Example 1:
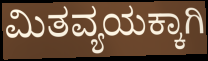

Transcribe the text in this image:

ಮಿತವ್ಯಯಕ್ಕಾಗಿ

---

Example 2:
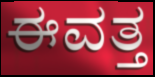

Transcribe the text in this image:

ಈವತ್ತ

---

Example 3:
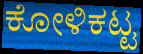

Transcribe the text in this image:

ಕೋಳಿಕಟ್ಟ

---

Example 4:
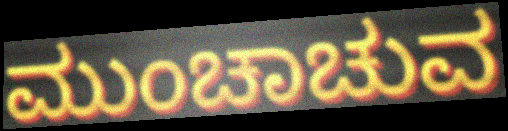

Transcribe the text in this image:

ಮುಂಚಾಚುವ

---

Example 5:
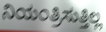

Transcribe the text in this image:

ನಿಯಂತ್ರಿಸುತ್ತಿಲ್ಲ